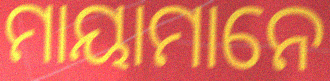
ମାୟାମାନେ